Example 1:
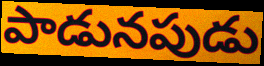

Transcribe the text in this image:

పాడునపుడు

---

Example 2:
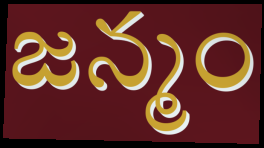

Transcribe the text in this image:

జన్మం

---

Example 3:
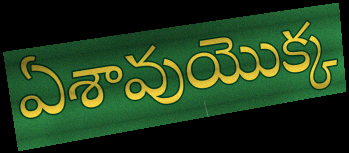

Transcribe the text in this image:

ఏశావుయొక్క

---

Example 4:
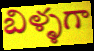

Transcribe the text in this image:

బిళ్ళగా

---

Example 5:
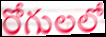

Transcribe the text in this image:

రోగులలో